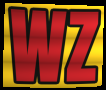
WZ